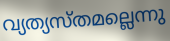
വ്യത്യസ്തമല്ലെന്നു